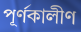
পূর্ণকালীণ